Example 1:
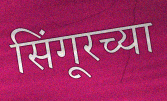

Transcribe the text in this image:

सिंगूरच्या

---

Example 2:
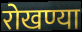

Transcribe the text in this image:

रोखण्या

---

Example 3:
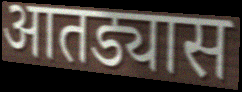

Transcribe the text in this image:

आतड्यास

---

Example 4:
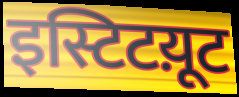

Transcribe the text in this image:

इस्टिटय़ूट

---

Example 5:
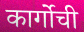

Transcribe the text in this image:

कार्गोची